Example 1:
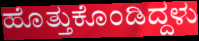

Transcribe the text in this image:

ಹೊತ್ತುಕೊಂಡಿದ್ದಳು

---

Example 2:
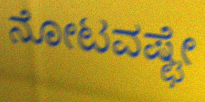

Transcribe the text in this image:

ನೋಟವಷ್ಟೇ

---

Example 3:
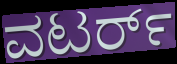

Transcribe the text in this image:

ವಟರ್ರ್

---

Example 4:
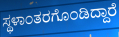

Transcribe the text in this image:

ಸ್ಥಳಾಂತರಗೊಂಡಿದ್ದಾರೆ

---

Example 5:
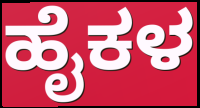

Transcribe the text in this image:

ಹೈಕಳ